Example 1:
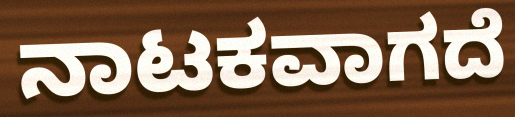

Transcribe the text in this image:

ನಾಟಕವಾಗದೆ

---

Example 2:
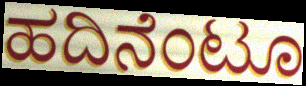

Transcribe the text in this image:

ಹದಿನೆಂಟೂ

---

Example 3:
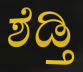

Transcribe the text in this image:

ಶೆಡ್ತಿ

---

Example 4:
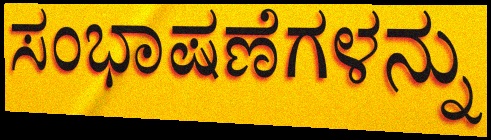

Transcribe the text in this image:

ಸಂಭಾಷಣೆಗಳನ್ನು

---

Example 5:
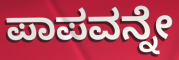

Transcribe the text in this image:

ಪಾಪವನ್ನೇ